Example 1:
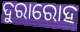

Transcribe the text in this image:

ଦୁରାରୋହ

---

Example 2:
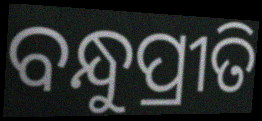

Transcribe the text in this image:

ବନ୍ଧୁପ୍ରୀତି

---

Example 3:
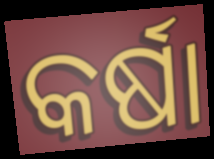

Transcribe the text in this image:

କର୍ଷା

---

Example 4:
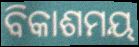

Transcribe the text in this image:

ବିକାଶମୟ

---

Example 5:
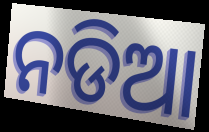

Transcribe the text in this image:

ନଡିଆ